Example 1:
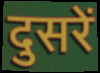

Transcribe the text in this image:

दुसरें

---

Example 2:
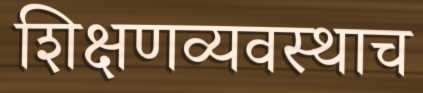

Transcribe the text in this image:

शिक्षणव्यवस्थाच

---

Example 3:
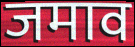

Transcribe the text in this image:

जमाव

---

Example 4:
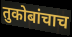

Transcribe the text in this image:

तुकोबांचाच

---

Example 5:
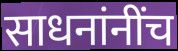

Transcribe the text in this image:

साधनांनींच